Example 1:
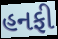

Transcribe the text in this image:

હનફી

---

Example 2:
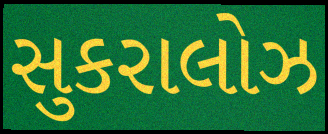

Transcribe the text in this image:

સુકરાલોઝ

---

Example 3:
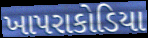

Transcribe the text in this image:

ખાપરાકોડિયા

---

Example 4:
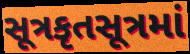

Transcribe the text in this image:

સૂત્રકૃતસૂત્રમાં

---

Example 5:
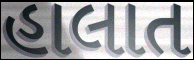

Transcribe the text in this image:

હાલાત